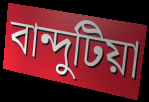
বান্দুটিয়া